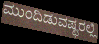
ಮುಂದಿಡುವಷ್ಟರಲ್ಲಿ